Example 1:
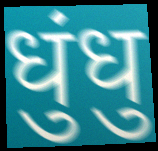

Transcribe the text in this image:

धुंधु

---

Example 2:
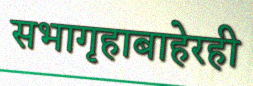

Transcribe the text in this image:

सभागृहाबाहेरही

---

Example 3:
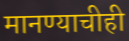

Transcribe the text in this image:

मानण्याचीही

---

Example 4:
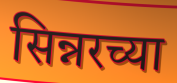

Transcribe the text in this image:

सिन्नरच्या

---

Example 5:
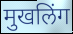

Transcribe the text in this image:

मुखलिंग